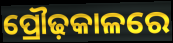
ପ୍ରୌଢ଼କାଳରେ